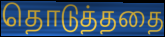
தொடுத்ததை